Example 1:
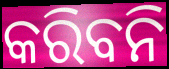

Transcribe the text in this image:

କରିବନି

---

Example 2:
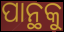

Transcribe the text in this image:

ପାନ୍ଥକୁ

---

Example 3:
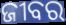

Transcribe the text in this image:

ଜୀବର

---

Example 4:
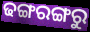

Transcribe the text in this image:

ଢଙ୍ଗରଙ୍ଗରୁ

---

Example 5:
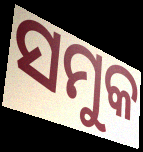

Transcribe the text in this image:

ସମୁକ